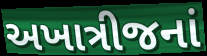
અખાત્રીજનાં